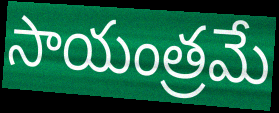
సాయంత్రమే